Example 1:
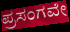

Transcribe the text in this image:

ಪ್ರಸಂಗವೇ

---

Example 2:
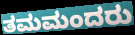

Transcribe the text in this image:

ತಮಮಂದರು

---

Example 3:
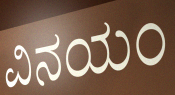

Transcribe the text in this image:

ವಿನಯಂ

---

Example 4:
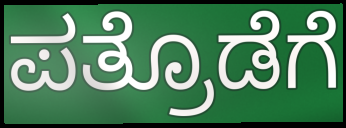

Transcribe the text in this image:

ಪತ್ರೊಡೆಗೆ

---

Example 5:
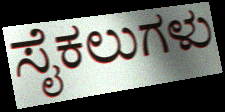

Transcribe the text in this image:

ಸೈಕಲುಗಳು